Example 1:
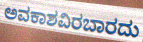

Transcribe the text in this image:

ಅವಕಾಶವಿರಬಾರದು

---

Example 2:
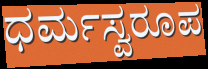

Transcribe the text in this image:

ಧರ್ಮಸ್ವರೂಪ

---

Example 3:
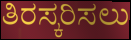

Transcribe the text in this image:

ತಿರಸ್ಕರಿಸಲು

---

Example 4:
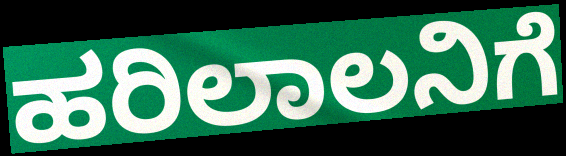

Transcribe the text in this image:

ಹರಿಲಾಲನಿಗೆ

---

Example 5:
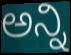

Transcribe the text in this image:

ಅನ್ನಿ